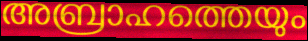
അബ്രാഹത്തെയും